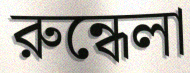
রুন্ধেলা